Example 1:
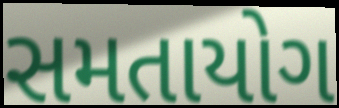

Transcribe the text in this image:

સમતાયોગ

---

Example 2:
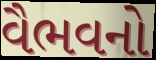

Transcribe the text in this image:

વૈભવનો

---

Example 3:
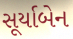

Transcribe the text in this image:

સૂર્યાબેન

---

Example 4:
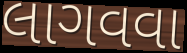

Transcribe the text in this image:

લાગવવા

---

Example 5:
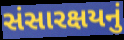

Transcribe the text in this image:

સંસારક્ષયનું